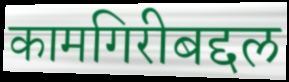
कामगिरीबद्दल